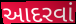
આદરવાં